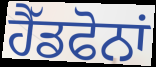
ਹੈੱਡਫੋਨਾਂ